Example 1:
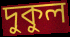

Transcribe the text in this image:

দুকুল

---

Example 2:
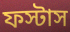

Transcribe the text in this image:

ফস্টাস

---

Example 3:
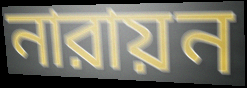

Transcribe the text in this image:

নারায়ন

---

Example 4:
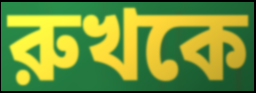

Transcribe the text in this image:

রুখকে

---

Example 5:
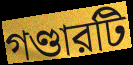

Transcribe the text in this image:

গণ্ডারটি